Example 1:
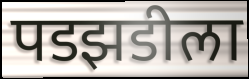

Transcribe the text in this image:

पडझडीला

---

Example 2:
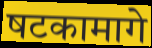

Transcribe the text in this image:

षटकामागे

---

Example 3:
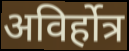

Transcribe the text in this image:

अविर्होत्र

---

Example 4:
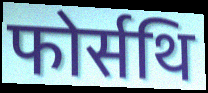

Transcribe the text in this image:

फोर्सथि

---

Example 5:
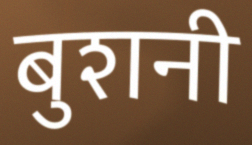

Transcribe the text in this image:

बुशनी